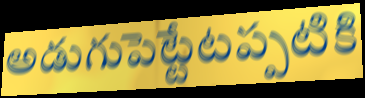
అడుగుపెట్టేటప్పటికి